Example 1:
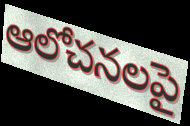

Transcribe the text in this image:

ఆలోచనలపై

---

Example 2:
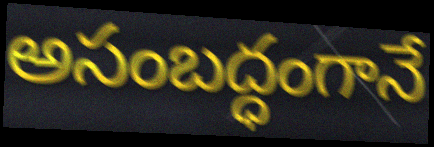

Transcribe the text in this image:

అసంబద్ధంగానే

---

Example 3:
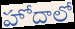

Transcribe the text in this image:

హోదాలో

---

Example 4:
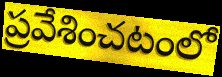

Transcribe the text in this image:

ప్రవేశించటంలో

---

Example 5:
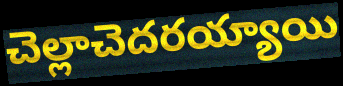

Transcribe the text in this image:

చెల్లాచెదరయ్యాయి